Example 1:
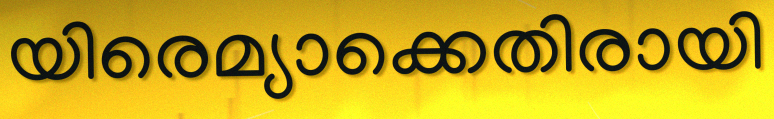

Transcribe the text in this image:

യിരെമ്യാക്കെതിരായി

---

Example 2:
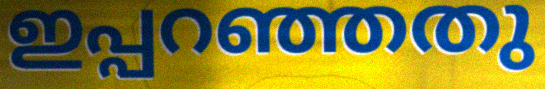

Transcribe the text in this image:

ഇപ്പറഞ്ഞതു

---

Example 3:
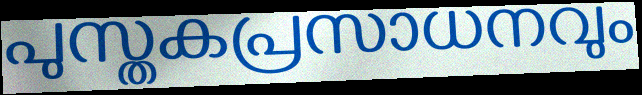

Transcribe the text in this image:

പുസ്തകപ്രസാധനവും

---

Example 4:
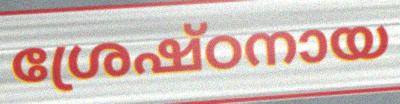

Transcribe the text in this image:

ശ്രേഷ്ഠനായ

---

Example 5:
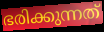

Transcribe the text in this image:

ഭരിക്കുന്നത്